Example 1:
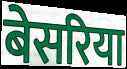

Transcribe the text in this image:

बेसरिया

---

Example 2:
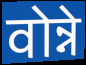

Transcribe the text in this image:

वोन्ने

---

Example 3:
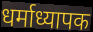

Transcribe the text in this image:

धर्माध्यापक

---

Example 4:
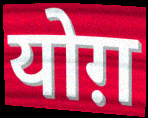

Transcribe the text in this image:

योग़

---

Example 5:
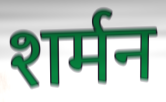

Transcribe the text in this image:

शर्मन